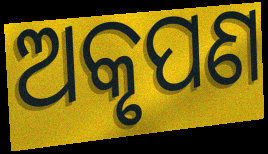
ଅକୃପଣ